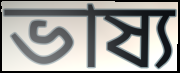
ভাষ্য